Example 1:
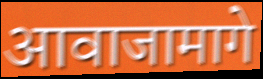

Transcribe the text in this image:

आवाजामागे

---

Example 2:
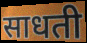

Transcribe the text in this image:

साधती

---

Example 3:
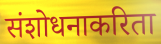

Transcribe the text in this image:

संशोधनाकरिता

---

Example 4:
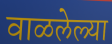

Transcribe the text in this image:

वाळलेल्या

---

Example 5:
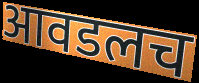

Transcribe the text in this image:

आवडलच